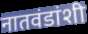
नातवंडांशी